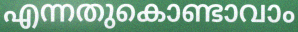
എന്നതുകൊണ്ടാവാം